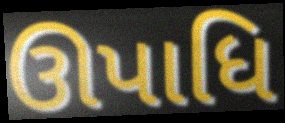
ઊપાધિ